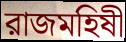
রাজমহিষী